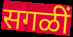
सगळीं